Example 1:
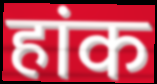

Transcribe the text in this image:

हांक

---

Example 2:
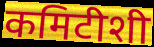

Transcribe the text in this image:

कमिटीशी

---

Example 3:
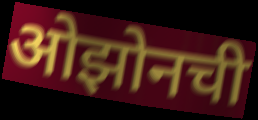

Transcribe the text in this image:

ओझोनची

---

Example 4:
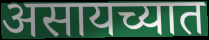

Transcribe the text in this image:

असायच्यात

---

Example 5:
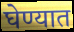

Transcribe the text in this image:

घेण्यात